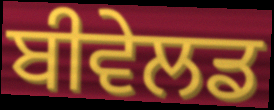
ਬੀਵੇਲਡ